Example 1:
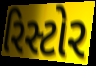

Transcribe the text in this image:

રિસ્ટોર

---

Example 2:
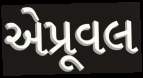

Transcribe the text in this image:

એપ્રૂવલ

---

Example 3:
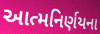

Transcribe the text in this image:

આત્મનિર્ણયના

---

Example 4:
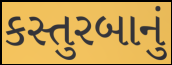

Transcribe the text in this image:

કસ્તુરબાનું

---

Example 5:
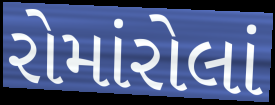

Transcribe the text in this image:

રોમાંરોલાં